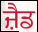
ਜ਼ੈਡ